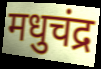
मधुचंद्र